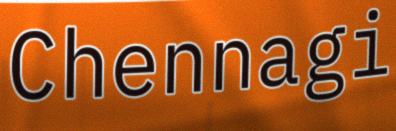
Chennagi